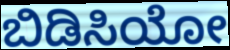
ಬಿಡಿಸಿಯೋ